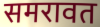
समरावत